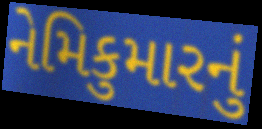
નેમિકુમારનું